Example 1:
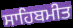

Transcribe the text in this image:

ਸਾਹਿਬਮੀਤ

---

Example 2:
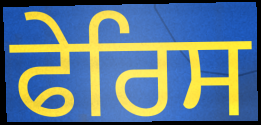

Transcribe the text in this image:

ਫੇਰਿਸ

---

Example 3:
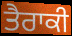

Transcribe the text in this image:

ਤੈਰਾਕੀ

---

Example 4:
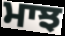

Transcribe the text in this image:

ਮਾਝ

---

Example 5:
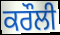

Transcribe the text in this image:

ਕਰੌਲੀ